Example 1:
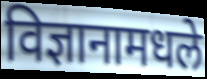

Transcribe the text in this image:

विज्ञानामधले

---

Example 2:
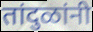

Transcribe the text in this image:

तांदुळांनी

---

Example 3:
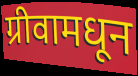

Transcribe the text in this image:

ग्रीवामधून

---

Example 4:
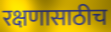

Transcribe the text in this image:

रक्षणासाठीच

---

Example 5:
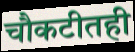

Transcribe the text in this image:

चौकटीतही